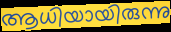
ആധിയായിരുന്നു